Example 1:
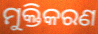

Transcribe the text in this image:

ମୁକ୍ତିକରଣ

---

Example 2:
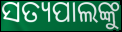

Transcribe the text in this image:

ସତ୍ୟପାଲଙ୍କୁ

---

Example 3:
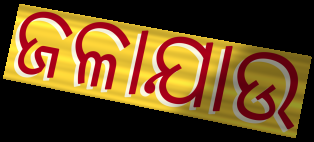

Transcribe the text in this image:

ଜଳାଯାଉ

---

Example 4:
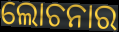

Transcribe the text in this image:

ଲୋଚନାର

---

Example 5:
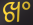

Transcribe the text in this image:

ଖଂ